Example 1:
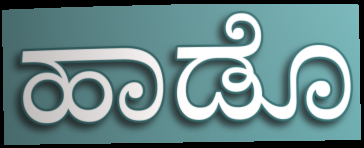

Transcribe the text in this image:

ಹಾಡೊ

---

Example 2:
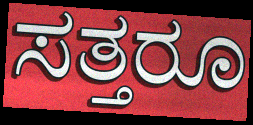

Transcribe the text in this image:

ಸತ್ತರೂ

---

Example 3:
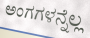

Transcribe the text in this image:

ಅಂಗಗಳನ್ನೆಲ್ಲ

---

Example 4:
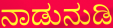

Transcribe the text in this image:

ನಾಡುನುಡಿ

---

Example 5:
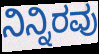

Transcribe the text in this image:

ನಿನ್ನಿರವು